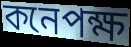
কনেপক্ষ